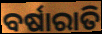
ବର୍ଷାରାତି